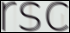
rsc